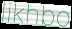
likhbo